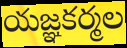
యజ్ఞకర్మల